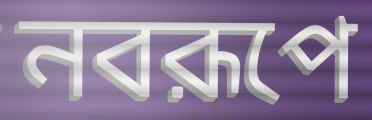
নবরূপে